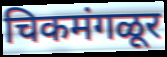
चिकमंगळूर